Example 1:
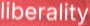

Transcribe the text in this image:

liberality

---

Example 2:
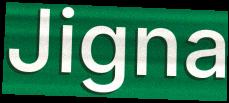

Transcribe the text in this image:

Jigna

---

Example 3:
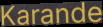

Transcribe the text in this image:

Karande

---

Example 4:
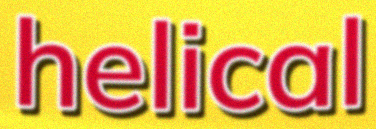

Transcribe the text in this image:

helical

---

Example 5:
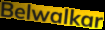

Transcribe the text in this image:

Belwalkar